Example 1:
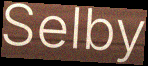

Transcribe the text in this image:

Selby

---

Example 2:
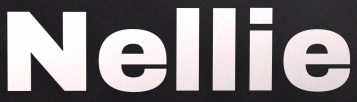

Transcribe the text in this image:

Nellie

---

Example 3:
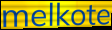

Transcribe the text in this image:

melkote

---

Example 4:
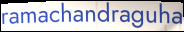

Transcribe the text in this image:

ramachandraguha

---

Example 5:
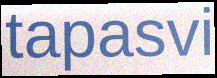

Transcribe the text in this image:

tapasvi